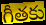
గీతకు